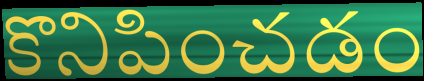
కొనిపించడం